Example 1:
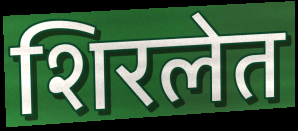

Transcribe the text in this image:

शिरलेत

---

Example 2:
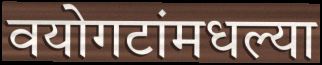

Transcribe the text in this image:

वयोगटांमधल्या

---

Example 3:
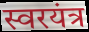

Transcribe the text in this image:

स्वरयंत्र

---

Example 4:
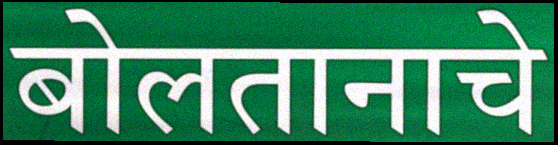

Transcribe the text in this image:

बोलतानाचे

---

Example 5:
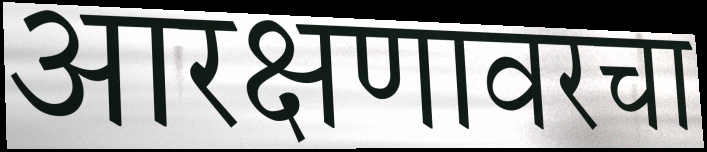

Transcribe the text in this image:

आरक्षणावरचा